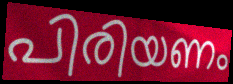
പിരിയണം